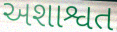
અશાશ્વત